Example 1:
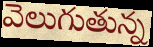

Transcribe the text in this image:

వెలుగుతున్న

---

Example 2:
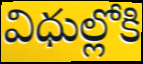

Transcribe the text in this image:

విధుల్లోకి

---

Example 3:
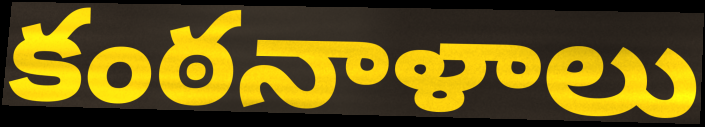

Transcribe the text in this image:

కంఠనాళాలు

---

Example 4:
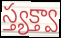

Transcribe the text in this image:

స్త్యక్త్వా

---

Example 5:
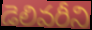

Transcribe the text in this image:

డెలివరీని